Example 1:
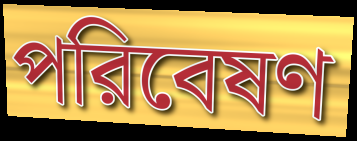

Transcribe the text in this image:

পরিবেষণ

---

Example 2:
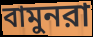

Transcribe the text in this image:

বামুনরা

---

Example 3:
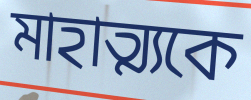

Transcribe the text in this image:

মাহাত্ম্যকে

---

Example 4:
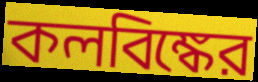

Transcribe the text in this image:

কলবিঙ্কের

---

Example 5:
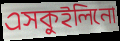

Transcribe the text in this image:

এসকুইলিনো